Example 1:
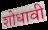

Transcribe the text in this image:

शोधावी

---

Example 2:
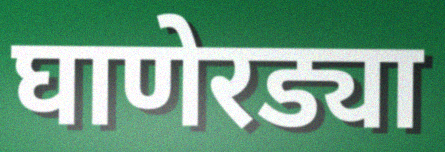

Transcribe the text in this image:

घाणेरड्या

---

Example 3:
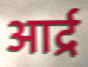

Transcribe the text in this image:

आर्द्र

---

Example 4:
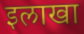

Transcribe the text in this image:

इलाखा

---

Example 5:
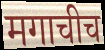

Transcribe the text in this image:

मगाचीच